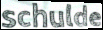
schulde